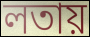
লতায়